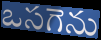
ఒసగెను